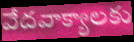
వేదవాక్యాలకు